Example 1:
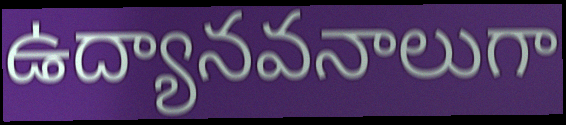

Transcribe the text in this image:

ఉద్యానవనాలుగా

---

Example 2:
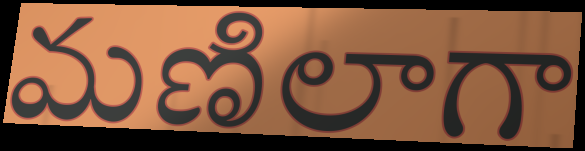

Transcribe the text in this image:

మణిలాగా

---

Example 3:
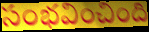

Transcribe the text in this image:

సంభవించింది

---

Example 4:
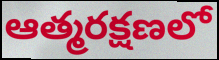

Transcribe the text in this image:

ఆత్మరక్షణలో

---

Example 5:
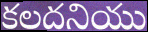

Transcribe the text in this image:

కలదనియు